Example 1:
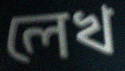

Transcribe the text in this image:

লেখ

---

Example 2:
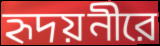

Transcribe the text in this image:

হৃদয়নীরে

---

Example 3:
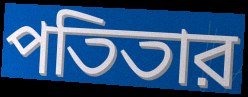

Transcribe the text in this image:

পতিতার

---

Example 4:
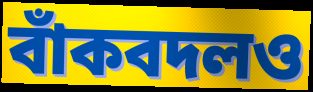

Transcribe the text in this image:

বাঁকবদলও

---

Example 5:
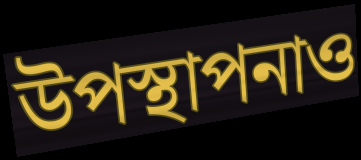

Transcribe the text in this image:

উপস্থাপনাও